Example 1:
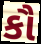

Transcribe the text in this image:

કૌ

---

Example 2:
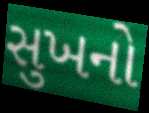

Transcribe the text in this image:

સુખનો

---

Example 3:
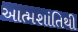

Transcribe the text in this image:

આત્મશાંતિથી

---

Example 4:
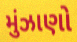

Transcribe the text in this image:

મુંઝાણો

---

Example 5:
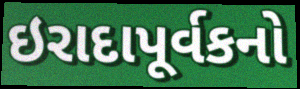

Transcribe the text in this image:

ઇરાદાપૂર્વકનો